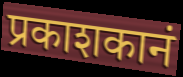
प्रकाशकानं